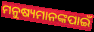
ମନୁଷ୍ୟମାନଙ୍କପାଇଁ